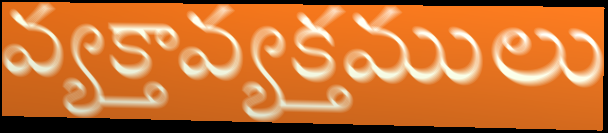
వ్యక్తావ్యక్తములు